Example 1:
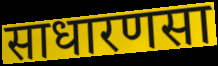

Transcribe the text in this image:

साधारणसा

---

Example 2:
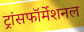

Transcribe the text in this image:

ट्रांसफॉर्मेशनल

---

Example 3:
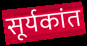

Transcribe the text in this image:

सूर्यकांत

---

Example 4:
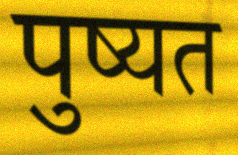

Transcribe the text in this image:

पुष्यत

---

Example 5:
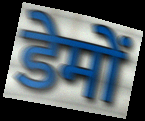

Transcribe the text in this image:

डेमों